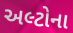
અલ્ટોના